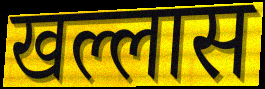
खल्लास